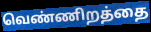
வெண்ணிறத்தை